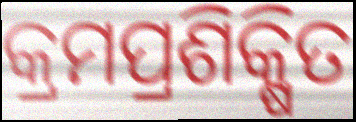
କ୍ରମପ୍ରଶିକ୍ଷିତ